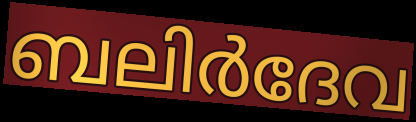
ബലിർദേവ